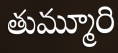
తుమ్మూరి